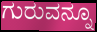
ಗುರುವನ್ನೂ